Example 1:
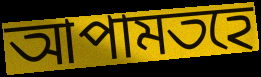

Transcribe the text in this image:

আপামতহে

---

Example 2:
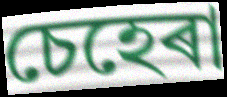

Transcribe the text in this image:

চেহেৰা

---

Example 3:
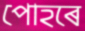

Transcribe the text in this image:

পোহৰে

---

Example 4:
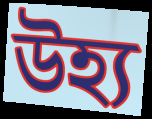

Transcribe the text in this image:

উহ্য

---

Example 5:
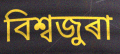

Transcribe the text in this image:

বিশ্বজুৰা